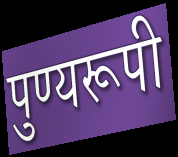
पुण्यरूपी